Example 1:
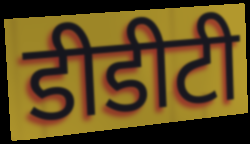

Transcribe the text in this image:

डीडीटी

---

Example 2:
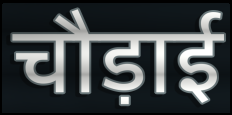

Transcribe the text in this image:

चौड़ाई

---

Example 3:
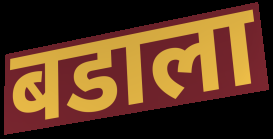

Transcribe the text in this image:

बडाला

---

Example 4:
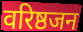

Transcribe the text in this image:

वरिष्ठजन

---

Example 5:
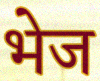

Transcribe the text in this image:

भेज